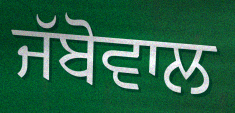
ਜੱਬੋਵਾਲ